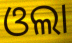
ଓଲା